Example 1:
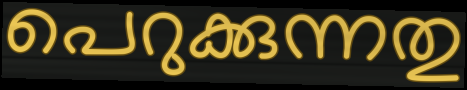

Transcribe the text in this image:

പെറുക്കുന്നതു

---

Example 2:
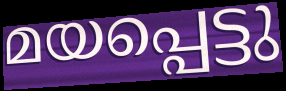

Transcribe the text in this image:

മയപ്പെട്ടു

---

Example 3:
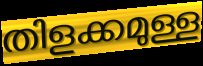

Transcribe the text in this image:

തിളക്കമുള്ള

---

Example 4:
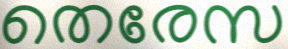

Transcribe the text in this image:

തെരേസ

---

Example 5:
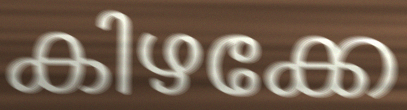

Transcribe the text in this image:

കിഴക്കേ